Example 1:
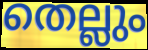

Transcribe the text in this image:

തെല്ലും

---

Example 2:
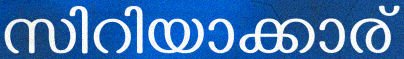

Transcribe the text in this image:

സിറിയാക്കാര്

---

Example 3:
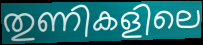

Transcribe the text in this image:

തുണികളിലെ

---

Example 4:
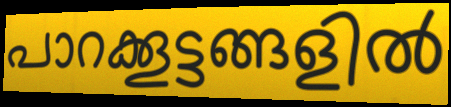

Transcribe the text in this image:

പാറക്കൂട്ടങ്ങളിൽ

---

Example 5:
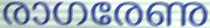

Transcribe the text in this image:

രാഗരേണു